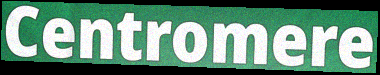
Centromere